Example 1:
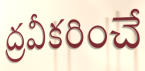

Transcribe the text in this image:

ద్రవీకరించే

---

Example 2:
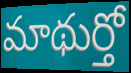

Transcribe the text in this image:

మాథుర్తో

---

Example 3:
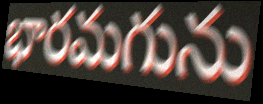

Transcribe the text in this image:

భారమగును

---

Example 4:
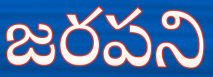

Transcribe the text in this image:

జరపని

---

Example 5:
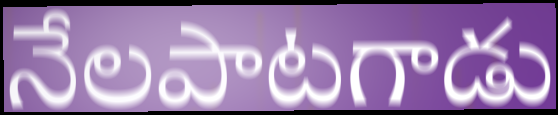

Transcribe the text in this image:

నేలపాటగాడు